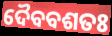
ଦୈବବଶତଃ